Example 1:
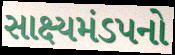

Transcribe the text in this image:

સાક્ષ્યમંડપનો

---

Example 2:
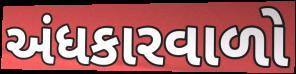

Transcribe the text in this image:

અંધકારવાળો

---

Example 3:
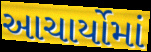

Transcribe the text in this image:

આચાર્યોમાં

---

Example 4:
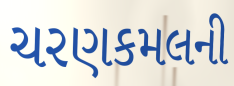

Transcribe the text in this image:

ચરણકમલની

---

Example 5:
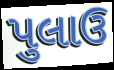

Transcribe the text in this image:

પુલાઉ